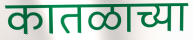
कातळाच्या